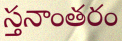
స్తనాంతరం